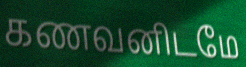
கணவனிடமே